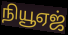
நியூஏஜ்